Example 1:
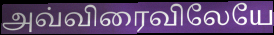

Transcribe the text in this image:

அவ்விரைவிலேயே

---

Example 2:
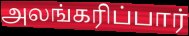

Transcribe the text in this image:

அலங்கரிப்பார்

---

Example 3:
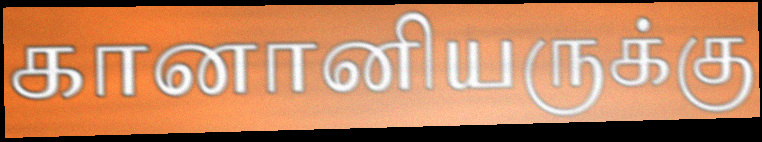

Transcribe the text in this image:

கானானியருக்கு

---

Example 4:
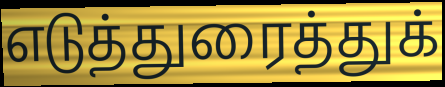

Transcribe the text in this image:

எடுத்துரைத்துக்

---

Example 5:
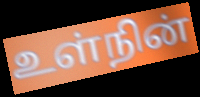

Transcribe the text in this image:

உள்நின்